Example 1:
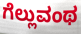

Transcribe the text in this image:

ಗೆಲ್ಲುವಂಥ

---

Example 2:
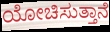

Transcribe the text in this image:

ಯೋಚಿಸುತ್ತಾನೆ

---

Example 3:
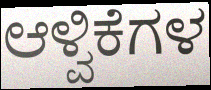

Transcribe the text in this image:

ಆಳ್ವಿಕೆಗಳ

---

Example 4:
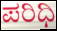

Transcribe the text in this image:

ಪರಿಧಿ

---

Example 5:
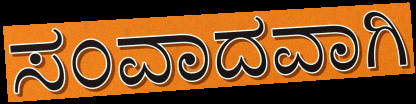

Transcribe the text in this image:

ಸಂವಾದವಾಗಿ